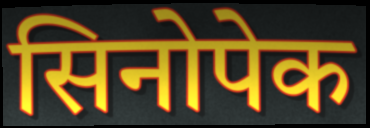
सिनोपेक